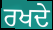
ਰਖਦੇ